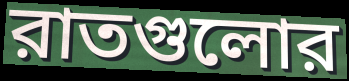
রাতগুলোর